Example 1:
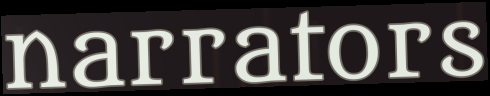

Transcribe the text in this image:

narrators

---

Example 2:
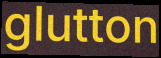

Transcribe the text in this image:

glutton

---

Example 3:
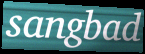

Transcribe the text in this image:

sangbad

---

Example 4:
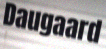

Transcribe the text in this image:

Daugaard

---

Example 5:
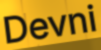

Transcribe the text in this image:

Devni